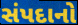
સંપદાનો